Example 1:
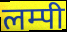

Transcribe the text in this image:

लम्पी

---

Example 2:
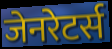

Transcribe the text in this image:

जेनरेटर्स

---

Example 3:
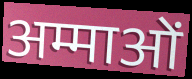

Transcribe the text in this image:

अम्माओं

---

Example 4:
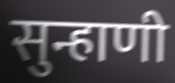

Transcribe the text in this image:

सुन्हाणी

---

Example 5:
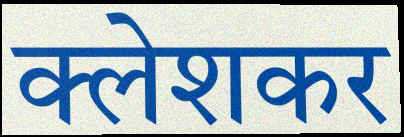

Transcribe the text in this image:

क्लेशकर